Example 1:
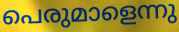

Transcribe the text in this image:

പെരുമാളെന്നു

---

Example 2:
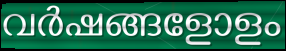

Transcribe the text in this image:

വർഷങ്ങളോളം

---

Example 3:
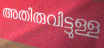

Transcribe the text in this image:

അതിരുവിട്ടുള്ള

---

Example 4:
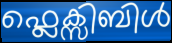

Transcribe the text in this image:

ഫ്ലെക്സിബിൾ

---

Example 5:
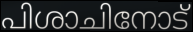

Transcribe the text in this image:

പിശാചിനോട്